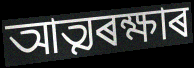
আত্মৰক্ষাৰ